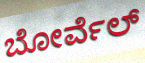
ಬೋರ್ವೆಲ್